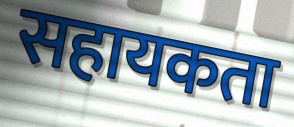
सहायकता